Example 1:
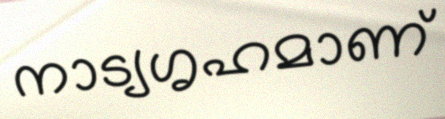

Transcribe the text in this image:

നാട്യഗൃഹമാണ്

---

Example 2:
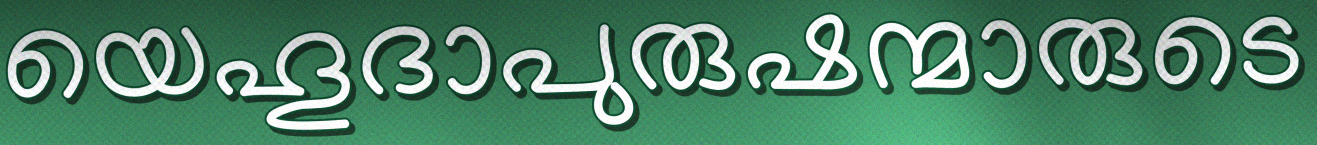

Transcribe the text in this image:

യെഹൂദാപുരുഷന്മാരുടെ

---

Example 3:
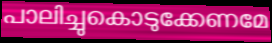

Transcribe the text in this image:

പാലിച്ചുകൊടുക്കേണമേ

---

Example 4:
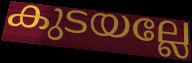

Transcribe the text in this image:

കുടയല്ലേ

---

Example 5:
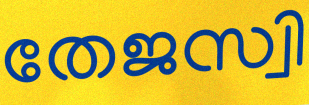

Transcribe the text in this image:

തേജസ്വി